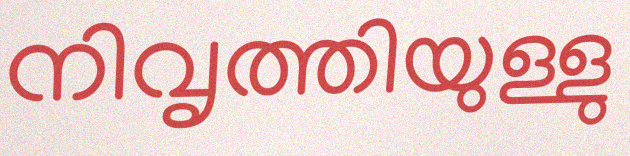
നിവൃത്തിയുള്ളു